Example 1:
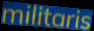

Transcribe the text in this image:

militaris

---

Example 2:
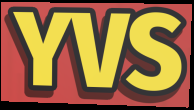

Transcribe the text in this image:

YVS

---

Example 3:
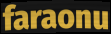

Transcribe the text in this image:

faraonu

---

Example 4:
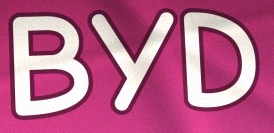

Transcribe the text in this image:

BYD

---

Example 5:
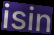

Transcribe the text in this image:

isin